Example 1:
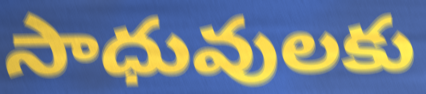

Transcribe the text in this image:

సాధువులకు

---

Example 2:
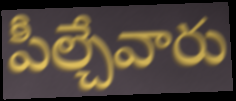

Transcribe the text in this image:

పీల్చేవారు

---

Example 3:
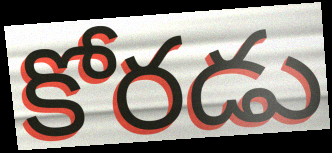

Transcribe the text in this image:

కోరడు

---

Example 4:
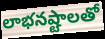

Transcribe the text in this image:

లాభనష్టాలతో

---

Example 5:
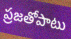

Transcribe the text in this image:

ప్రజతోపాటు